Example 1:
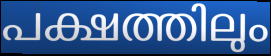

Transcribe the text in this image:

പക്ഷത്തിലും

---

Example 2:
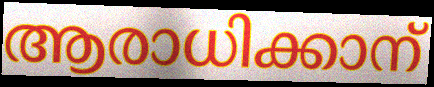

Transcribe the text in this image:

ആരാധിക്കാന്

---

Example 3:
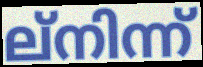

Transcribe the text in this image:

ല്നിന്ന്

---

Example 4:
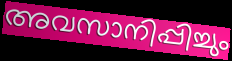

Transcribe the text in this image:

അവസാനിപ്പിച്ചും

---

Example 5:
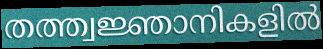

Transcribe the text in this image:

തത്ത്വജ്ഞാനികളിൽ